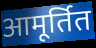
आमूर्तित